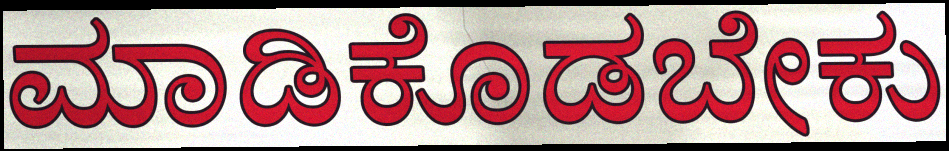
ಮಾಡಿಕೊಡಬೇಕು